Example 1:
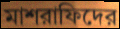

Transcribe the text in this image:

মাশরাফিদের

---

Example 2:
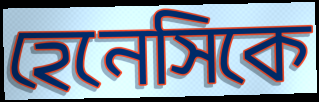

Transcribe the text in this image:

হেনেসিকে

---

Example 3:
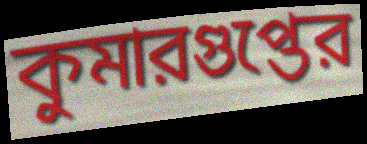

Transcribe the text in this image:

কুমারগুপ্তের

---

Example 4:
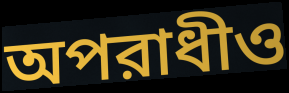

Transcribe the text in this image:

অপরাধীও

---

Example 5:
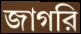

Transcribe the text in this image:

জাগরি